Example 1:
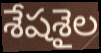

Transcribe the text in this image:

శేషశైల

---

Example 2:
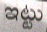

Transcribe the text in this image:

ఇట్టు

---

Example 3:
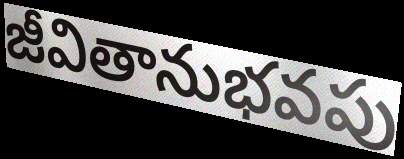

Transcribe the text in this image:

జీవితానుభవపు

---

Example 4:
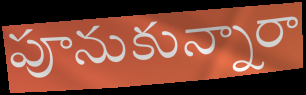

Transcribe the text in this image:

పూనుకున్నారా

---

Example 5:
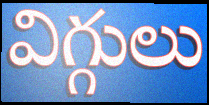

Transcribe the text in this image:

విగ్గులు